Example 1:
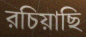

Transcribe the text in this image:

রচিয়াছি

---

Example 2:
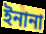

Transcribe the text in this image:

ইনানা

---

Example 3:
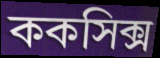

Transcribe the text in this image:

ককসিক্স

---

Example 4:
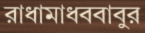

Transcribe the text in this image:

রাধামাধববাবুর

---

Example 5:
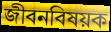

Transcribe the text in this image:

জীবনবিষয়ক